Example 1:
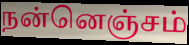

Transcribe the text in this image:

நன்னெஞ்சம்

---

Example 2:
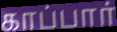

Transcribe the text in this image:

காப்பார்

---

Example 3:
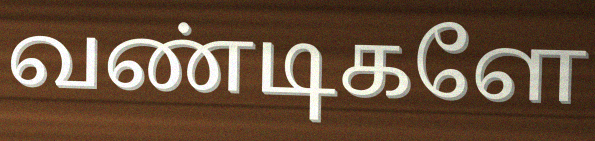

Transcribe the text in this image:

வண்டிகளே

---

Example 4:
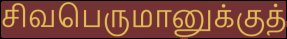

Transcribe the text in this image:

சிவபெருமானுக்குத்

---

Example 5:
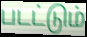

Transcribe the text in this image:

படட்டும்